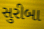
સુરીબા